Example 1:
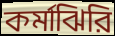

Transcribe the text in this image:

কর্মাঝিরি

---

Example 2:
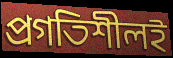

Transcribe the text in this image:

প্রগতিশীলই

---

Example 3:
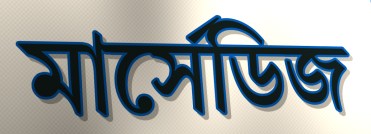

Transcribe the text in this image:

মার্সেডিজ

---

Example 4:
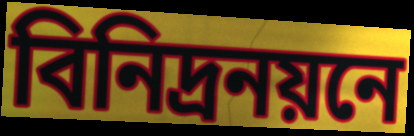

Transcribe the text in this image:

বিনিদ্রনয়নে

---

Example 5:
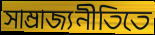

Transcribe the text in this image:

সাম্রাজ্যনীতিতে